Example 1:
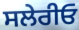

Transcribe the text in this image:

ਸਲੇਰੀਓ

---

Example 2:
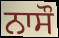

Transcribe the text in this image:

ਨਾਸੌ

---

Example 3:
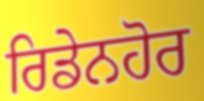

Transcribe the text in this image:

ਰਿਡੇਨਹੋਰ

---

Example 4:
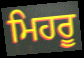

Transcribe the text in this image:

ਮਿਹਰੂ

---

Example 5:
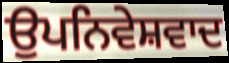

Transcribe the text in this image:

ਉਪਨਿਵੇਸ਼ਵਾਦ